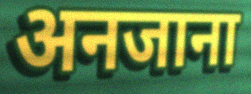
अनजाना